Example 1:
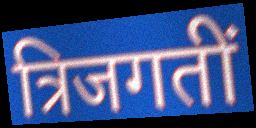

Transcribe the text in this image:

त्रिजगतीं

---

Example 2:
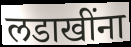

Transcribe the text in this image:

लडाखींना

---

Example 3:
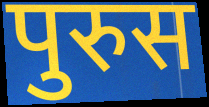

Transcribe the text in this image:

पुरुस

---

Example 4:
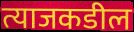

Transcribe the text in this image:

त्याजकडील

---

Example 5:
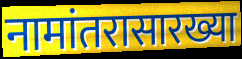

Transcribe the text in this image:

नामांतरासारख्या